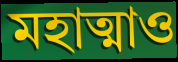
মহাত্মাও